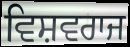
ਵਿਸ਼ਵਰਾਜ